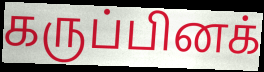
கருப்பினக்